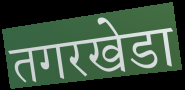
तगरखेडा